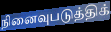
நினைவுபடுத்திக்